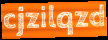
cjzilqzd